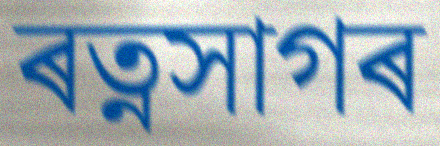
ৰত্নসাগৰ